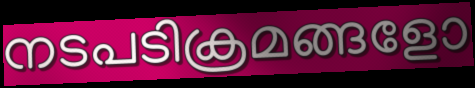
നടപടിക്രമങ്ങളോ